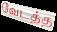
வேடத்த